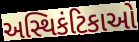
અસ્થિકંટિકાઓ